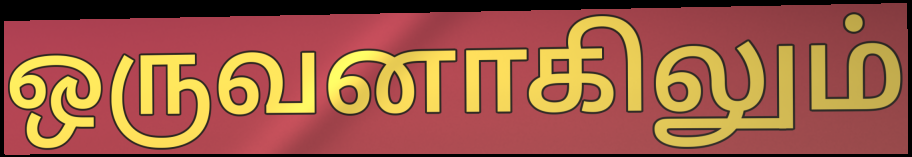
ஒருவனாகிலும்